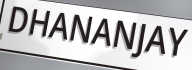
DHANANJAY